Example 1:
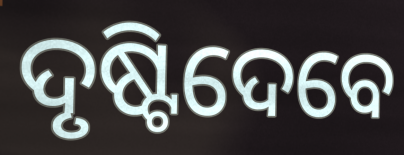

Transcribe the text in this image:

ଦୃଷ୍ଟିଦେବେ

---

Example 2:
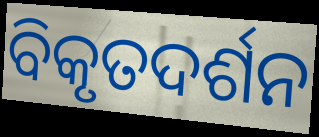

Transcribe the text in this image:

ବିକୃତଦର୍ଶନ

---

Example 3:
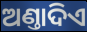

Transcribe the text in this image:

ଅଣ୍ତାଦିଏ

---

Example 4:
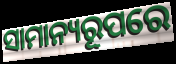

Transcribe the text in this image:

ସାମାନ୍ୟରୂପରେ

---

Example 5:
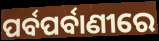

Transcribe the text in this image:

ପର୍ବପର୍ବାଣୀରେ